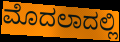
ಮೊದಲಾದಲ್ಲಿ